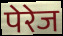
पेरेज